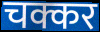
चक्कर